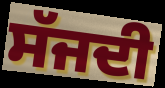
ਸੱਜਦੀ